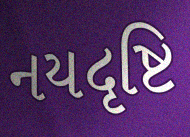
નયદૃષ્ટિ